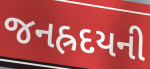
જનહ્રદયની